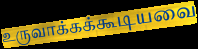
உருவாக்கக்கூடியவை